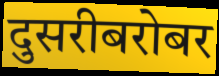
दुसरीबरोबर